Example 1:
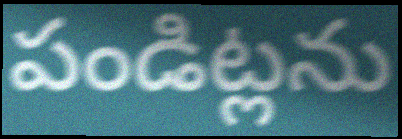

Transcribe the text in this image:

పండిట్లను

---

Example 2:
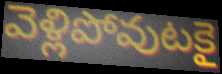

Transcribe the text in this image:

వెళ్లిపోవుటకై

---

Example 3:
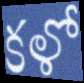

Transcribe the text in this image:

కళో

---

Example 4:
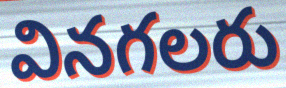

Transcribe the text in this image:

వినగలరు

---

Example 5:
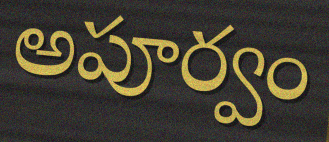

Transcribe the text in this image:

అపూర్వం